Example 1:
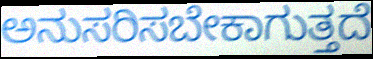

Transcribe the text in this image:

ಅನುಸರಿಸಬೇಕಾಗುತ್ತದೆ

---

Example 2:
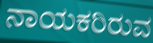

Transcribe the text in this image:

ನಾಯಕರಿರುವ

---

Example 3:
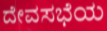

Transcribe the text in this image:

ದೇವಸಭೆಯ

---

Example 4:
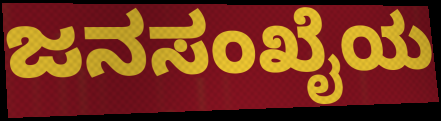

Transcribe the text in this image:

ಜನಸಂಖೈಯ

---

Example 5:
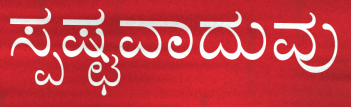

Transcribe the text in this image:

ಸ್ಪಷ್ಟವಾದುವು